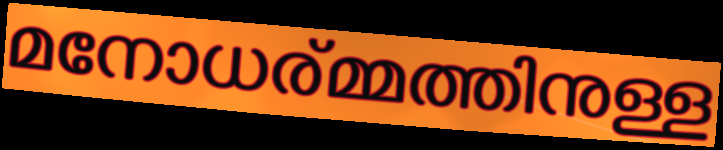
മനോധര്മ്മത്തിനുള്ള